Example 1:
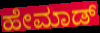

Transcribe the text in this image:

ಹೇಮಾಡ್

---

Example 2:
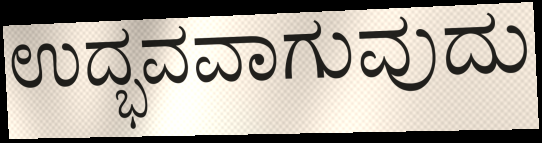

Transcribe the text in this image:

ಉದ್ಭವವಾಗುವುದು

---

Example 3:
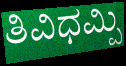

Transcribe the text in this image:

ತಿವಿಧಮ್ಪಿ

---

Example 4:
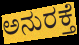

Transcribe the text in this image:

ಅನುರಕ್ತೆ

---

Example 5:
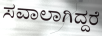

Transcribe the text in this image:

ಸವಾಲಾಗಿದ್ದರೆ